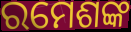
ରମେଶଙ୍କ